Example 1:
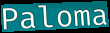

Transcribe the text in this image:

Paloma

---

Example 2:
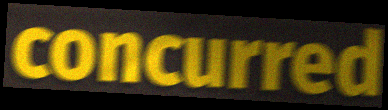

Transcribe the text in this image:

concurred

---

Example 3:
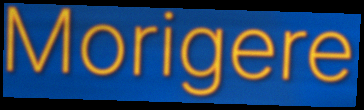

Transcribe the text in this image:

Morigere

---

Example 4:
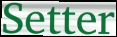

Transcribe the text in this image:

Setter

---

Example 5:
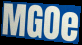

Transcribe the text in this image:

MGOe